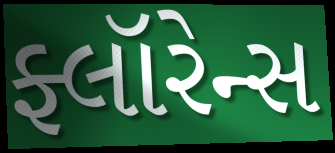
ફ્લૉરેન્સ